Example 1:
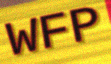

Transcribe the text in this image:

WFP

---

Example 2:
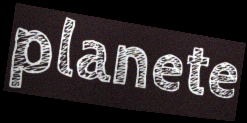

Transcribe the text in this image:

planete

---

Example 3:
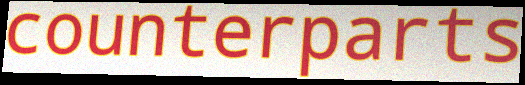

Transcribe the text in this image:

counterparts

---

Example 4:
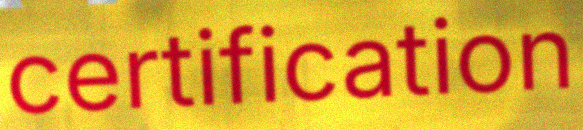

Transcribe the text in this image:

certification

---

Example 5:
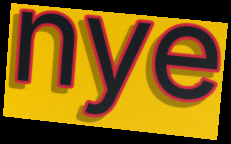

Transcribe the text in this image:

nye